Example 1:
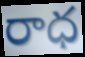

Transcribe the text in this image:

రాధ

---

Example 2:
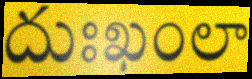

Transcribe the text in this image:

దుఃఖంలా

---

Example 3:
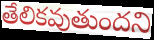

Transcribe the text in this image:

తేలికవుతుందని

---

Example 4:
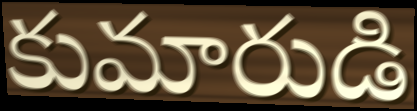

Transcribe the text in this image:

కుమారుడి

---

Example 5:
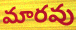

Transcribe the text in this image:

మారవు